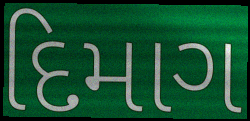
દિમાગ